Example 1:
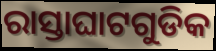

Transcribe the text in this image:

ରାସ୍ତାଘାଟଗୁଡିକ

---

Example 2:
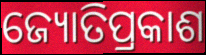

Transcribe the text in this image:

ଜ୍ୟୋତିପ୍ରକାଶ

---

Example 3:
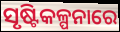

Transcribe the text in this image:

ସୃଷ୍ଟିକଳ୍ପନାରେ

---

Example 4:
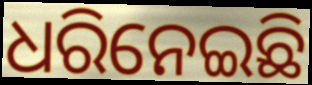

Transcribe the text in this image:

ଧରିନେଇଛି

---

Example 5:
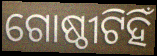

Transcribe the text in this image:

ଗୋଷ୍ଠୀଟିହିଁ